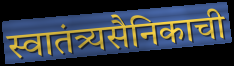
स्वातंत्र्यसैनिकाची